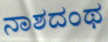
ನಾಶದಂಥ